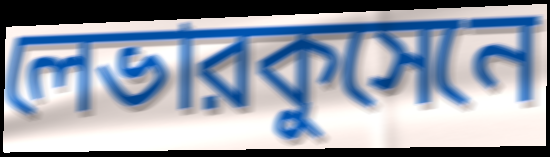
লেভারকুসেনে